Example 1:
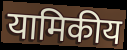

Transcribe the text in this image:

यामिकीय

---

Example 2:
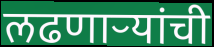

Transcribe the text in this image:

लढणाऱ्यांची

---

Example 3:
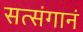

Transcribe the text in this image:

सत्संगानं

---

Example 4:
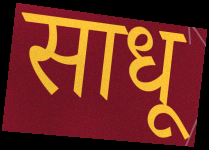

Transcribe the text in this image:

साधू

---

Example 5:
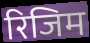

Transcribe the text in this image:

रिजिम